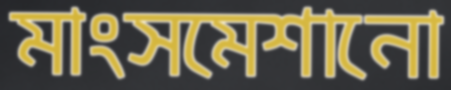
মাংসমেশানো